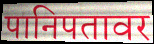
पानिपतावर